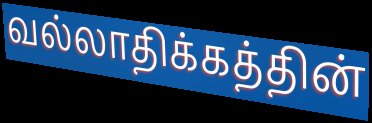
வல்லாதிக்கத்தின்